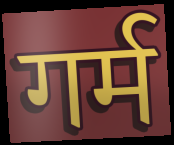
गर्म